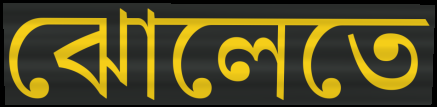
ঝোলেতে